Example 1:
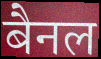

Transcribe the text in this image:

बैनल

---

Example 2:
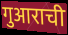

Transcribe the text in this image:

गुआराची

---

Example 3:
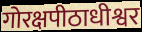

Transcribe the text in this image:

गोरक्षपीठाधीश्वर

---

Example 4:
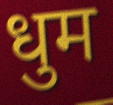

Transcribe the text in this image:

धुम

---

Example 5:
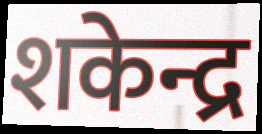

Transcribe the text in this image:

शकेन्द्र